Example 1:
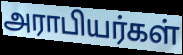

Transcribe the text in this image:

அராபியர்கள்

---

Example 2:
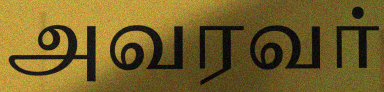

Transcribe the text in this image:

அவரவர்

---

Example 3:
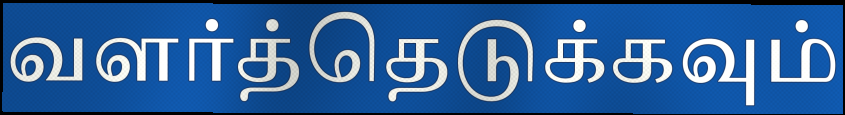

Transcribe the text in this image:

வளர்த்தெடுக்கவும்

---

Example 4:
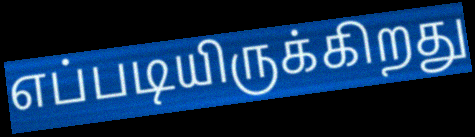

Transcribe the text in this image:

எப்படியிருக்கிறது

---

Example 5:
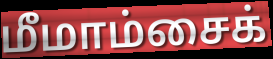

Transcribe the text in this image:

மீமாம்சைக்